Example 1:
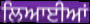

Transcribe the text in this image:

ਲਿਆਈਆਂ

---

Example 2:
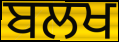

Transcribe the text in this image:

ਬਲਖ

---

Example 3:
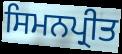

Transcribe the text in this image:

ਸਿਮਨਪ੍ਰੀਤ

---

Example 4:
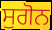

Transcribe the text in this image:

ਸੁਗੋਨ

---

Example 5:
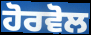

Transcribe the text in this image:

ਹੋਰਵੋਲ